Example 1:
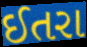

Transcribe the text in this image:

ઈતરા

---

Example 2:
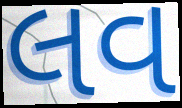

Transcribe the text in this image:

લવ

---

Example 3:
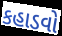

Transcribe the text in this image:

કહાડવો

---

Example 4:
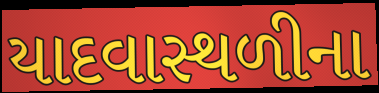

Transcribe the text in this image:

યાદવાસ્થળીના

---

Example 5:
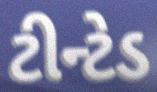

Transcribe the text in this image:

ટીન્ટેડ